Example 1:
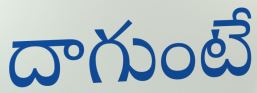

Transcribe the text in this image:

దాగుంటే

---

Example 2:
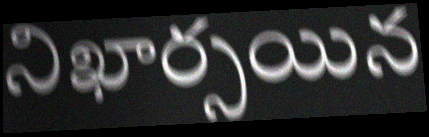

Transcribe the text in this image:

నిఖార్సయిన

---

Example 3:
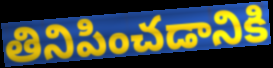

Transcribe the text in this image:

తినిపించడానికి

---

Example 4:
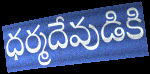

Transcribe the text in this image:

ధర్మదేవుడికి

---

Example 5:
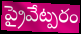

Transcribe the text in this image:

ప్రైవేట్పరం